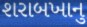
શરાબખાનુ